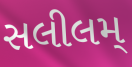
સલીલમ્